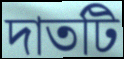
দাতটি